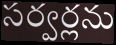
సర్వర్లను